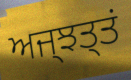
ਅਜ੍ਝਤ੍ਤਂ